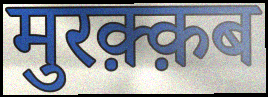
मुरक़्क़ब